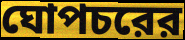
ঘোপচরের